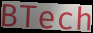
BTech